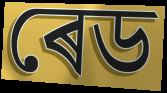
ৰেড